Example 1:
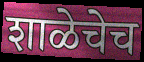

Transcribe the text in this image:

शाळेचेच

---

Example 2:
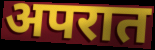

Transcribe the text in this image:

अपरात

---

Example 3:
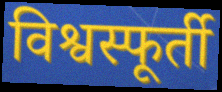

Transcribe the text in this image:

विश्वस्फूर्ती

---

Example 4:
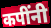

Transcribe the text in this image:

कपींनी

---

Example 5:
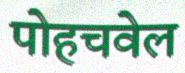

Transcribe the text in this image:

पोहचवेल